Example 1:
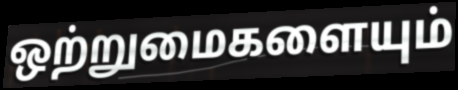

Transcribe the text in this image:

ஒற்றுமைகளையும்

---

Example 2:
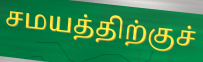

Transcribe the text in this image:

சமயத்திற்குச்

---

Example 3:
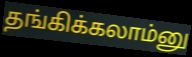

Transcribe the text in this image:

தங்கிக்கலாம்னு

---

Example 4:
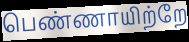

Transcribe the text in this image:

பெண்ணாயிற்றே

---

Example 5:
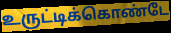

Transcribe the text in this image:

உருட்டிக்கொண்டே